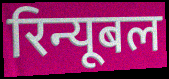
रिन्यूबल